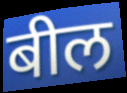
बील